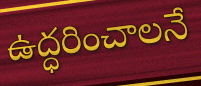
ఉద్ధరించాలనే